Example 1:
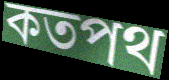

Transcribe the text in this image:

কতপথ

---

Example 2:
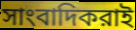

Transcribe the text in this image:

সাংবাদিকরাই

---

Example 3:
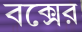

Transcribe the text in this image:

বক্সের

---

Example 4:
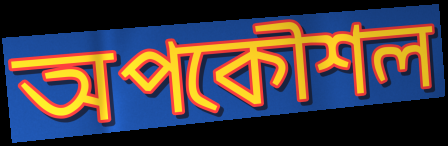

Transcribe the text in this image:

অপকৌশল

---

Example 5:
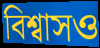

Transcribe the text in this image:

বিশ্বাসও